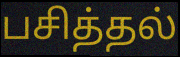
பசித்தல்